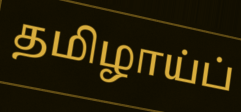
தமிழாய்ப்